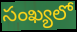
సంఖ్యలో